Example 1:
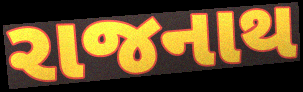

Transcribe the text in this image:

રાજનાથ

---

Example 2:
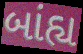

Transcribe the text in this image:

બાંહ્ય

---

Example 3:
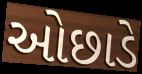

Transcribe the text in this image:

ઓછાડે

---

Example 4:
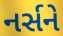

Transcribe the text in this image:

નર્સને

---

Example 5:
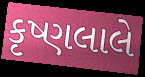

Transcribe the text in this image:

કૃષ્ણલાલે